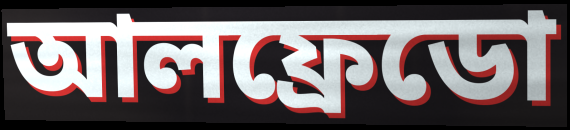
আলফ্রেডো